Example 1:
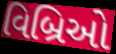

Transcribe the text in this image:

વિબ્રિઓ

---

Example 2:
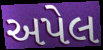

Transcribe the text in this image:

અપેલ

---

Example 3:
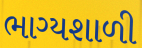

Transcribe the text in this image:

ભાગ્યશાળી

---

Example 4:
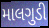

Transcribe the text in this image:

માલગુડી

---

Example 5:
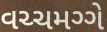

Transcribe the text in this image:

વચ્ચમગ્ગે